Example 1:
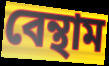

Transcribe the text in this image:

বেন্থাম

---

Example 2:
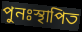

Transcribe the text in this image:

পুনঃস্থাপিত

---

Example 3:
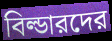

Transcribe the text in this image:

বিল্ডারদের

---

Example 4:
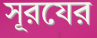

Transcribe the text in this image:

সূরযের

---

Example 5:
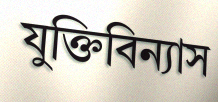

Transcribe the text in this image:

যুক্তিবিন্যাস